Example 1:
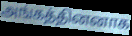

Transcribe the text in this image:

அங்கத்தினனாக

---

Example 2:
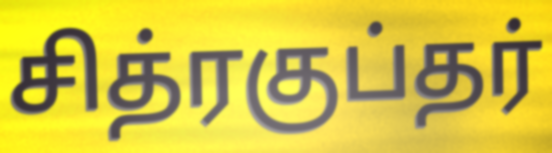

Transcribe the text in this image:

சித்ரகுப்தர்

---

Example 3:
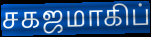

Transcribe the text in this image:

சகஜமாகிப்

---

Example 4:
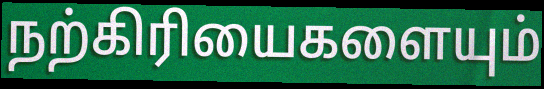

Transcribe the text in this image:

நற்கிரியைகளையும்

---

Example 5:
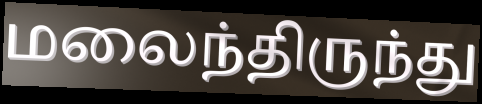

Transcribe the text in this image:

மலைந்திருந்து